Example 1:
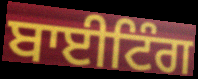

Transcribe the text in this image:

ਬਾਈਟਿੰਗ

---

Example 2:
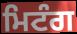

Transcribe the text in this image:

ਮਿਟੰਗ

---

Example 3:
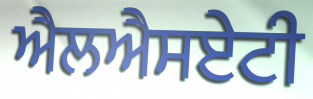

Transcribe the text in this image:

ਐਲਐਸਏਟੀ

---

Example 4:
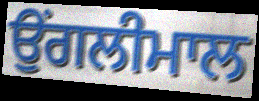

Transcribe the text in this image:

ਉਂਗਲੀਮਾਲ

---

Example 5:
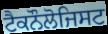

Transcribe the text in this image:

ਟੈਕਨੌਲੋਜਿਸਟ